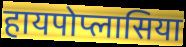
हायपोप्लासिया